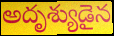
అదృశ్యుడైన